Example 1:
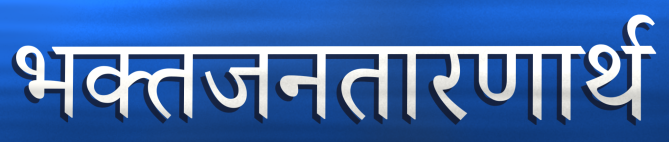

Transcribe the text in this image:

भक्तजनतारणार्थ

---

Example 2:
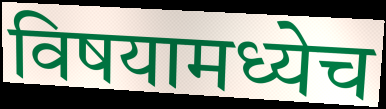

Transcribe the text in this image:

विषयामध्येच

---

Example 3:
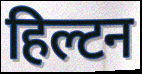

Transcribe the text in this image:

हिल्टन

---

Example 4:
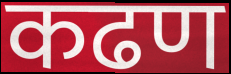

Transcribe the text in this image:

कढण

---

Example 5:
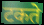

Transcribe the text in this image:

टकते